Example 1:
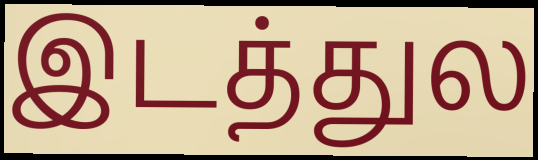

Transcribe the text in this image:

இடத்துல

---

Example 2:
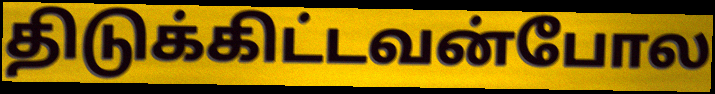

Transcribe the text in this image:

திடுக்கிட்டவன்போல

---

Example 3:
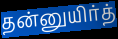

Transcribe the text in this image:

தன்னுயிர்த்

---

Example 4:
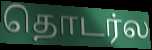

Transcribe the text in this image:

தொடர்ல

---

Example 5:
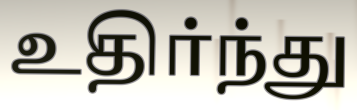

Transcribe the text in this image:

உதிர்ந்து